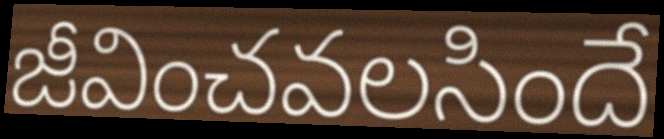
జీవించవలసిందే